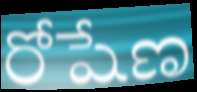
రోషేణ